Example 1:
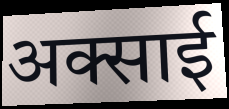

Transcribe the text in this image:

अक्साई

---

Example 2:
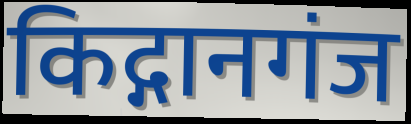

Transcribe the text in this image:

किद्गानगंज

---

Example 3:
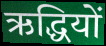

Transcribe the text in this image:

ऋद्धियों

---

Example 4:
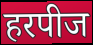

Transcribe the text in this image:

हरपीज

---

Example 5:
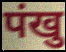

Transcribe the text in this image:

पंखु